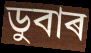
ডুবাৰ